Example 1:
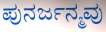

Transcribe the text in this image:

ಪುನರ್ಜನ್ಮವು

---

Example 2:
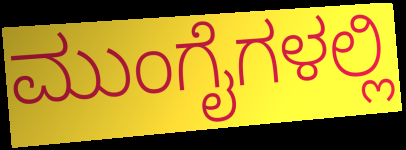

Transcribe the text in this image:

ಮುಂಗೈಗಳಲ್ಲಿ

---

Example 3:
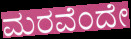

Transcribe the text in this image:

ಮರವೆಂದೇ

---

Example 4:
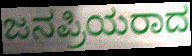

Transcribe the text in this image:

ಜನಪ್ರಿಯರಾದ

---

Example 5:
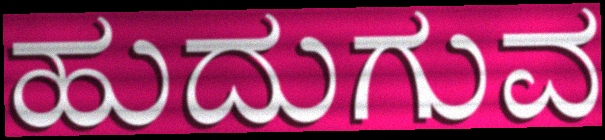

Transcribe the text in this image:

ಹುದುಗುವ